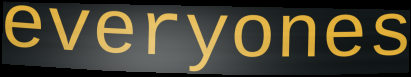
everyones